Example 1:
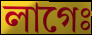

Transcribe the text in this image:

লাগেঃ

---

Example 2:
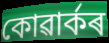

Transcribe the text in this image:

কোৱাৰ্কৰ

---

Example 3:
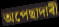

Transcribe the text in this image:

অপেছাদাৰী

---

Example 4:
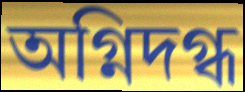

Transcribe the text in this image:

অগ্নিদগ্ধ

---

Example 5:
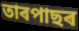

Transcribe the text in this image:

তাৰপাছৰ